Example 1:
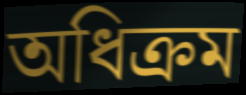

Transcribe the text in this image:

অধিক্রম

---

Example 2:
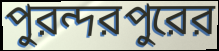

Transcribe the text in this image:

পুরন্দরপুরের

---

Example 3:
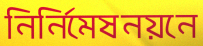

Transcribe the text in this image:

নির্নিমেষনয়নে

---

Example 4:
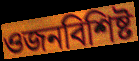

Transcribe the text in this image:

ওজনবিশিষ্ট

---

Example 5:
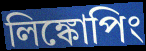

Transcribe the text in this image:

লিঙ্কোপিং